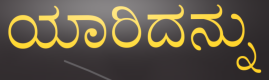
ಯಾರಿದನ್ನು